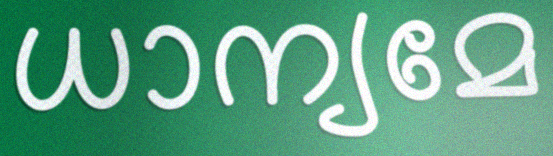
ധാന്യമേ